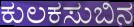
ಕುಲಕಸುಬಿನ